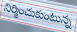
నిర్మించుకుంటున్న